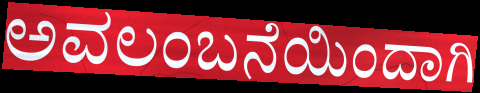
ಅವಲಂಬನೆಯಿಂದಾಗಿ